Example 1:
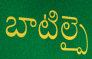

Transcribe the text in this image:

బాటిల్పై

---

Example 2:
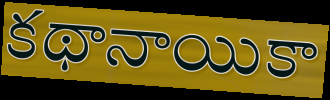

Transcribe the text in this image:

కథానాయికా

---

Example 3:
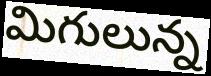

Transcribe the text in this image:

మిగులున్న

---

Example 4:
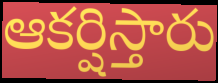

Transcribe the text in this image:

ఆకర్షిస్తారు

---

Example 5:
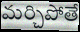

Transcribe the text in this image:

మర్చిపోతే